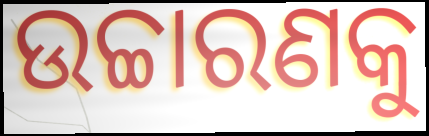
ଉଚ୍ଚାରଣକୁ